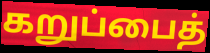
கறுப்பைத்